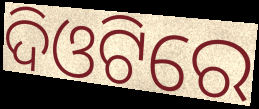
ଦିଓଟିରେ